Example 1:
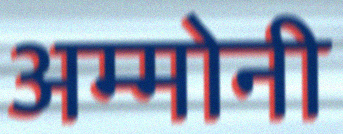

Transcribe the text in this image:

अम्मोनी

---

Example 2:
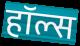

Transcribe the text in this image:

हॉल्स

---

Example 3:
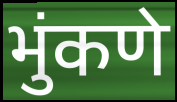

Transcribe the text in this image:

भुंकणे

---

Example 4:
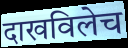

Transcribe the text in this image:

दाखविलेच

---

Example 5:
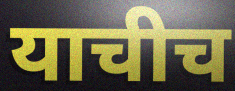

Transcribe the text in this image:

याचीच